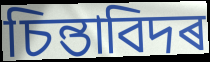
চিন্তাবিদৰ